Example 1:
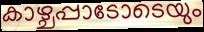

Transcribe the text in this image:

കാഴ്ചപ്പാടോടെയും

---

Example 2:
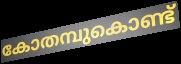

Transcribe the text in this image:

കോതമ്പുകൊണ്ട്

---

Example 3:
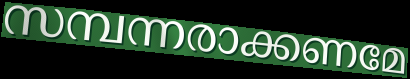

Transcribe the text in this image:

സമ്പന്നരാക്കണമേ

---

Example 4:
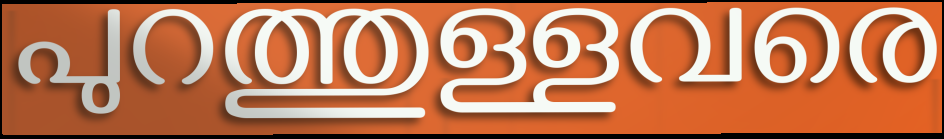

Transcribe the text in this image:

പുറത്തുള്ളവരെ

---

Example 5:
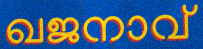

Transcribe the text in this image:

ഖജനാവ്